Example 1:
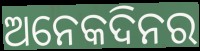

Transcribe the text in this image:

ଅନେକଦିନର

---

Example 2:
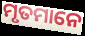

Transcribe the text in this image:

ମୃତମାନେ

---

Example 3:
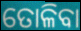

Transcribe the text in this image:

ତୋଳିବା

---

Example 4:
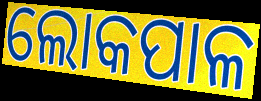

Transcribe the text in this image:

ଲୋକପାଳ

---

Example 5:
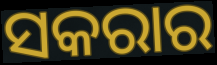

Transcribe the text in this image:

ସକରାର